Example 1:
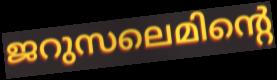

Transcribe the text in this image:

ജറുസലെമിന്റെ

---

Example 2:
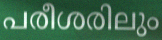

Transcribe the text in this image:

പരീശരിലും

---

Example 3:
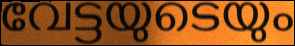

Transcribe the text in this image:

വേട്ടയുടെയും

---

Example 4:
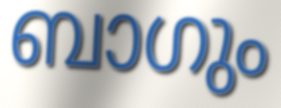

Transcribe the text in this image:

ബാഗും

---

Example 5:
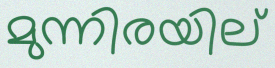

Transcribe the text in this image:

മുന്നിരയില്